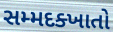
સમ્મદક્ખાતો